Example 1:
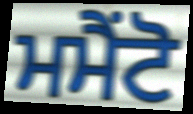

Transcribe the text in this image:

ਮਮੈਂਟੋ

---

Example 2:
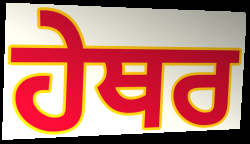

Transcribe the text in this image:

ਹੇਥਰ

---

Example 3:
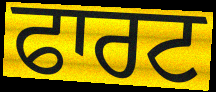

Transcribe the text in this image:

ਫਾਰਟ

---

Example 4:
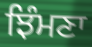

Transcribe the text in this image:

ਝਿੰਮਣਾ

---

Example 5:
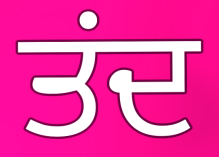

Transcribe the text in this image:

ਤਂਦ